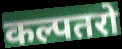
कल्पतरो